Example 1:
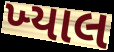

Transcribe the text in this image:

ખ્‍યાલ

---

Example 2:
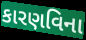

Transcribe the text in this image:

કારણવિના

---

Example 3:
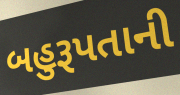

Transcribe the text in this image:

બહુરૂપતાની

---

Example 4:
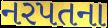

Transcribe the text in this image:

નરપતના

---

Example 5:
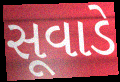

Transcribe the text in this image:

સૂવાડે